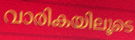
വാരികയിലൂടെ